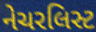
નેચરલિસ્ટ